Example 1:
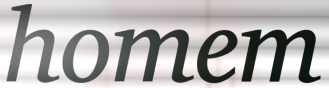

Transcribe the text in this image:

homem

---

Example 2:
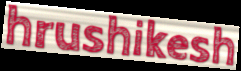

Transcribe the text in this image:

hrushikesh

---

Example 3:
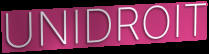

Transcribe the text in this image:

UNIDROIT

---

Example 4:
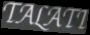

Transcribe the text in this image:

TALATI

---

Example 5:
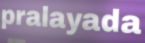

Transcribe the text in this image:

pralayada